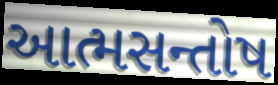
આત્મસન્તોષ